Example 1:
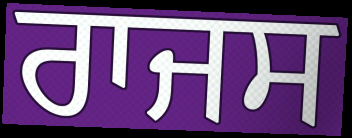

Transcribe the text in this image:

ਰਾਜਸ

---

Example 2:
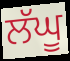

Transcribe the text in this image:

ਲੱਘੂ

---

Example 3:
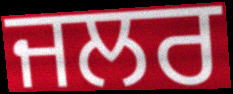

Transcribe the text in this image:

ਜਲਰ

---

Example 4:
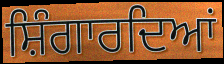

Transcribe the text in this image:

ਸ਼ਿੰਗਾਰਦਿਆਂ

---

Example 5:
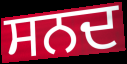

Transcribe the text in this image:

ਸਨਦ